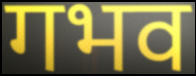
गभव